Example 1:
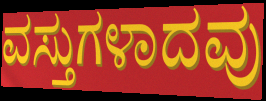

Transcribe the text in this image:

ವಸ್ತುಗಳಾದವು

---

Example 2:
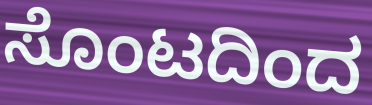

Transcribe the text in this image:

ಸೊಂಟದಿಂದ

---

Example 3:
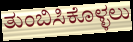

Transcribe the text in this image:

ತುಂಬಿಸಿಕೊಳ್ಳಲು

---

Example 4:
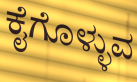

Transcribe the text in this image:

ಕೈಗೊಳ್ಳುವ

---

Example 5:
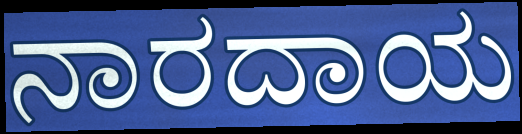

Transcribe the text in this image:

ನಾರದಾಯ